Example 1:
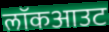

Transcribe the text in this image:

लॉकआउट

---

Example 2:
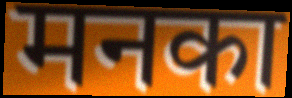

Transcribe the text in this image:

मनका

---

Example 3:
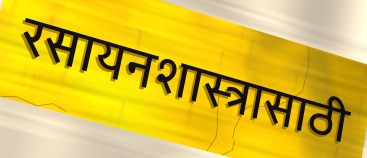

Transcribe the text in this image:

रसायनशास्त्रासाठी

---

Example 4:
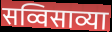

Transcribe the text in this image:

सव्विसाव्या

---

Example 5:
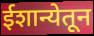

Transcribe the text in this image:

ईशान्येतून